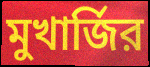
মুখার্জির